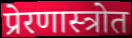
प्रेरणास्त्रोत